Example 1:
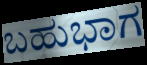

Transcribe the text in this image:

ಬಹುಭಾಗ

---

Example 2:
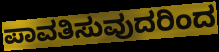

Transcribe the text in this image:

ಪಾವತಿಸುವುದರಿಂದ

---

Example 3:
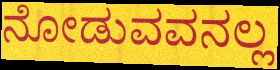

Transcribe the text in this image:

ನೋಡುವವನಲ್ಲ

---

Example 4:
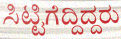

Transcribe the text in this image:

ಸಿಟ್ಟಿಗೆದ್ದಿದ್ದರು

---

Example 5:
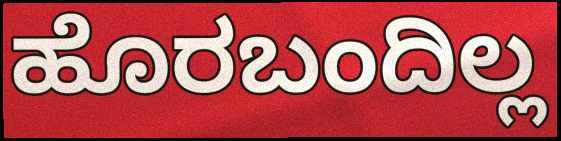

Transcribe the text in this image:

ಹೊರಬಂದಿಲ್ಲ